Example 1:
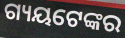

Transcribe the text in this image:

ଗ୍ୟୟଟେଙ୍କର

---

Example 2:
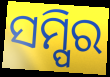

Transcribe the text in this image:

ସମ୍ପିର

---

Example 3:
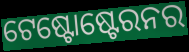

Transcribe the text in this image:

ଟେଷ୍ଟୋଷ୍ଟେରନର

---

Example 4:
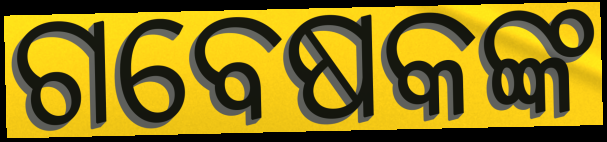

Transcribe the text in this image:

ଗବେଷକଙ୍କ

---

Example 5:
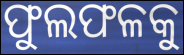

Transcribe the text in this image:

ଫୁଲଫଳକୁ